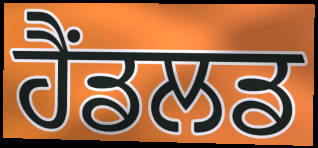
ਹੈਂਡਲਡ